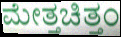
ಮೇತ್ತಚಿತ್ತಂ